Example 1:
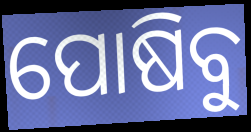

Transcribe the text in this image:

ପୋଷିବୁ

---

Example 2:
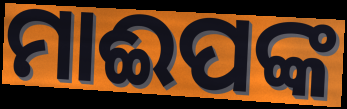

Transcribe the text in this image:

ମାଈପଙ୍କ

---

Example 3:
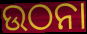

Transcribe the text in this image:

ଉଠନା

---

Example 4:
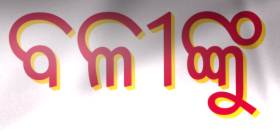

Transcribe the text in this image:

ବଳୀଙ୍କୁ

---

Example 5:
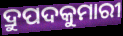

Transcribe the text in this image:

ଦ୍ରୁପଦକୁମାରୀ